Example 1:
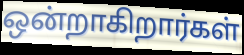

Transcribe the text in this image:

ஒன்றாகிறார்கள்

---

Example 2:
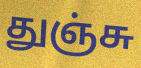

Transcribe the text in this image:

துஞ்சு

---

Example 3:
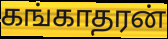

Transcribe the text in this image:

கங்காதரன்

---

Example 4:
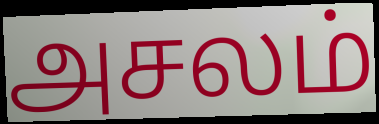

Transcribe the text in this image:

அசலம்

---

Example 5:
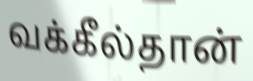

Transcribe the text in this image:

வக்கீல்தான்